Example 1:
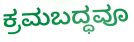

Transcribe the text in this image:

ಕ್ರಮಬದ್ಧವೂ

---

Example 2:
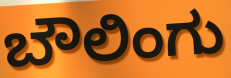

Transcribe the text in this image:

ಬೌಲಿಂಗು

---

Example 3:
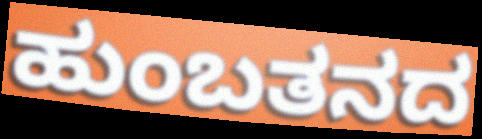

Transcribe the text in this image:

ಹುಂಬತನದ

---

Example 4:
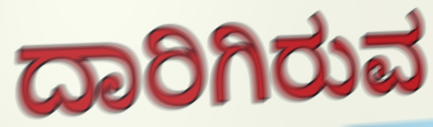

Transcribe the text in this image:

ದಾರಿಗಿರುವ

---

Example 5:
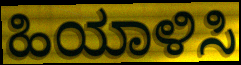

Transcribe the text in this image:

ಹಿಯಾಳಿಸಿ